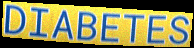
DIABETES